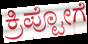
ಕ್ರಿಪ್ಟೋಗೆ